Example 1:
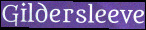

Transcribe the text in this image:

Gildersleeve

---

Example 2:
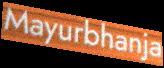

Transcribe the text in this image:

Mayurbhanja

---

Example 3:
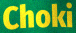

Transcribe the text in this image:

Choki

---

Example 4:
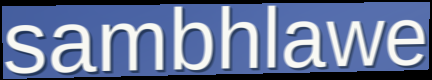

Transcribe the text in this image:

sambhlawe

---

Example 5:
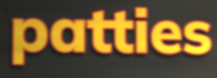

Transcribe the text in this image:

patties